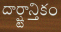
దార్ష్టాన్తికం